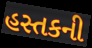
હસ્તકની